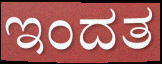
ಇಂದತ